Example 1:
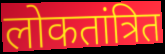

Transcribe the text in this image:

लोकतांत्रित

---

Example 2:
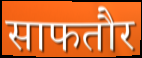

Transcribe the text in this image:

साफतौर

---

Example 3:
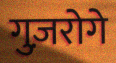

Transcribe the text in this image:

गुज़रोगे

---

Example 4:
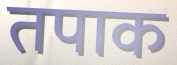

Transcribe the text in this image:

तपाक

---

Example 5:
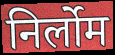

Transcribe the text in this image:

निर्लोम